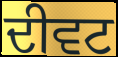
ਦੀਵਟ